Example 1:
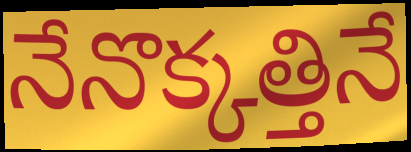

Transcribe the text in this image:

నేనొక్కత్తినే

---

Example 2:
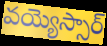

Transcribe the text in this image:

వయ్యెస్సార్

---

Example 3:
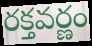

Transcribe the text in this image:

రక్తవర్ణం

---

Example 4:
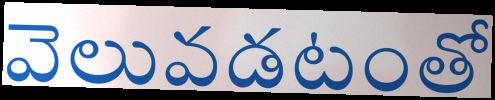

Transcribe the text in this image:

వెలువడటంతో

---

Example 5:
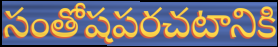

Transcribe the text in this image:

సంతోషపరచటానికి